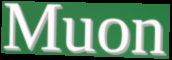
Muon